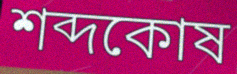
শব্দকোষ